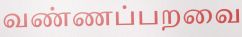
வண்ணப்பறவை